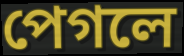
পেগলে